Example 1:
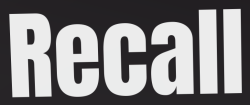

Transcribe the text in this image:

Recall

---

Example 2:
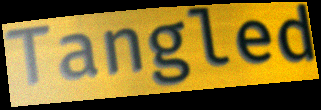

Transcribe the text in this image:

Tangled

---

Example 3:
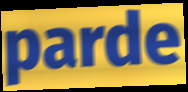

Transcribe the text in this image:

parde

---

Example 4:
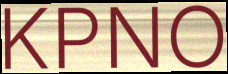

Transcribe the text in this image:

KPNO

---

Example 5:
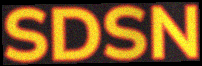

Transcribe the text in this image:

SDSN